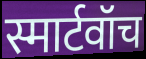
स्मार्टवॉच